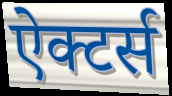
ऐक्टर्स